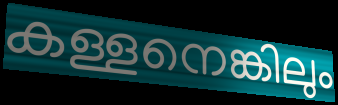
കള്ളനെങ്കിലും